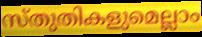
സ്തുതികളുമെല്ലാം